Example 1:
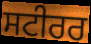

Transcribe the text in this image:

ਸਟੀਰਰ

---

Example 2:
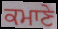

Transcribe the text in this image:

ਕਮਾਣੇ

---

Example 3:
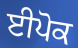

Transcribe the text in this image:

ਈਪੋਕ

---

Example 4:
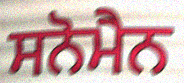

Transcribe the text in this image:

ਸਨੋਮੈਨ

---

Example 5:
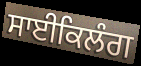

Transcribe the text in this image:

ਸਾਈਕਿਲੰਗ